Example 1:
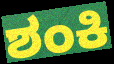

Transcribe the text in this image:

ಶಂಕಿ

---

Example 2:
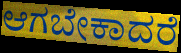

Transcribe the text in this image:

ಆಗಬೇಕಾದರೆ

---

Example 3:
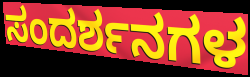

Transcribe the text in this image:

ಸಂದರ್ಶನಗಳ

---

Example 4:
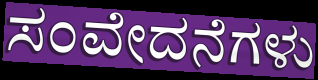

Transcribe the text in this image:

ಸಂವೇದನೆಗಳು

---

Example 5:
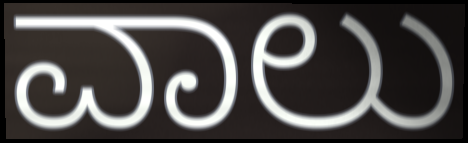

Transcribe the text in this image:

ವಾಲು